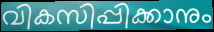
വികസിപ്പിക്കാനും